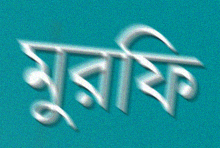
মুরফি